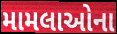
મામલાઓના